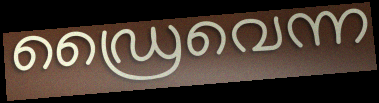
ഡ്രൈവെന്ന